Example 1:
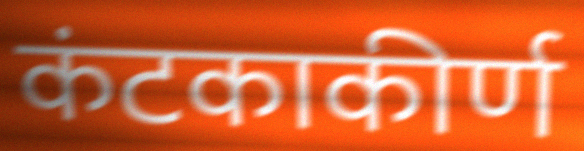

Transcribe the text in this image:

कंटकाकीर्ण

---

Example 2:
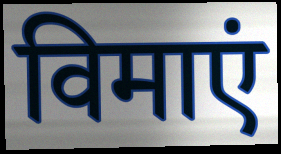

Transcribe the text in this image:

विमाएं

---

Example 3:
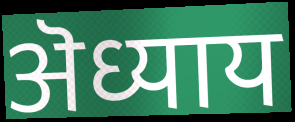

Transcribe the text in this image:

ऄध्याय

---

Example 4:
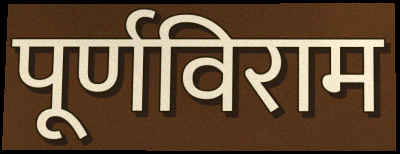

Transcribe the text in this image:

पूर्णविराम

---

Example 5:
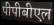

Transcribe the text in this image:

पीपीबीएल